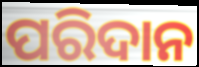
ପରିଦାନ